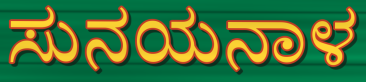
ಸುನಯನಾಳ